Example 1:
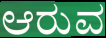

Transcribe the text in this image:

ಆರುವ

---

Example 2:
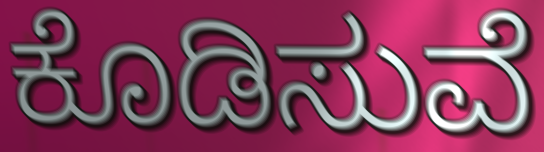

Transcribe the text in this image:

ಕೊಡಿಸುವೆ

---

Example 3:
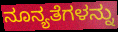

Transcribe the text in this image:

ನೂನ್ಯತೆಗಳನ್ನು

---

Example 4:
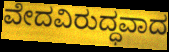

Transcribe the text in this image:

ವೇದವಿರುದ್ಧವಾದ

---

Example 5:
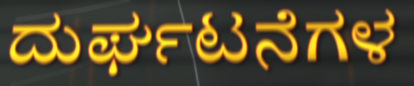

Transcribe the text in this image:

ದುರ್ಘಟನೆಗಳ